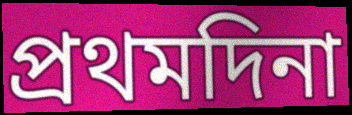
প্ৰথমদিনা